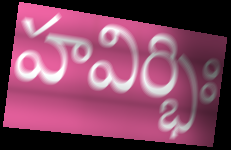
హవిర్భిః